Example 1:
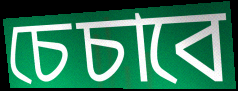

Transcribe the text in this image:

চেচাবে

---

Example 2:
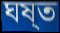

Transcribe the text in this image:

ঘষ্ত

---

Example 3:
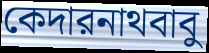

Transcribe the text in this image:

কেদারনাথবাবু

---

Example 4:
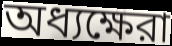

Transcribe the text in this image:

অধ্যক্ষেরা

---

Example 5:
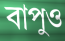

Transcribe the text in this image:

বাপুও